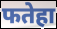
फतेहा